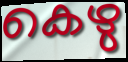
കെഴു